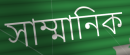
সাম্মানিক